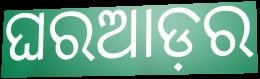
ଘରଆଡ଼ର